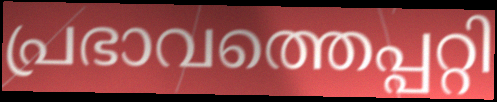
പ്രഭാവത്തെപ്പറ്റി